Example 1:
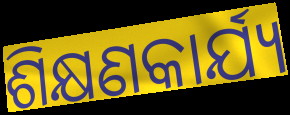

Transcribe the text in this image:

ଶିକ୍ଷଣକାର୍ଯ୍ୟ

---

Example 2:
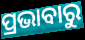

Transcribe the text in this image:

ପ୍ରଭାବାରୁ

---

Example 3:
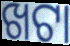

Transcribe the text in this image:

ଖଟା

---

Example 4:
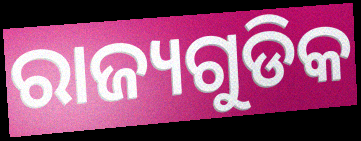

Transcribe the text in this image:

ରାଜ୍ୟଗୁଡିକ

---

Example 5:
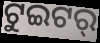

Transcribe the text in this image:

ଟୁଇଟର୍